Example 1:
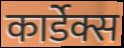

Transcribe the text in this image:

कार्डेक्स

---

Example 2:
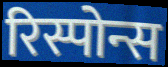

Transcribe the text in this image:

रिस्पोन्स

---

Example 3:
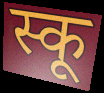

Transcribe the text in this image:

स्कू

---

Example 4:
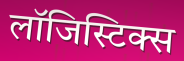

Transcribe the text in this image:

लॉजिस्टिक्‍स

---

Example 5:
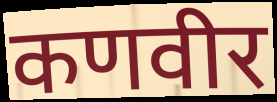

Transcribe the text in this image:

कणवीर